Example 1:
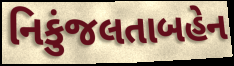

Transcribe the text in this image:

નિકુંજલતાબહેન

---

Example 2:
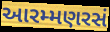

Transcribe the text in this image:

આરમ્મણરસં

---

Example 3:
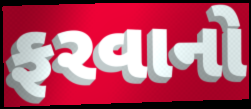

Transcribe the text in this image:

ફરવાનો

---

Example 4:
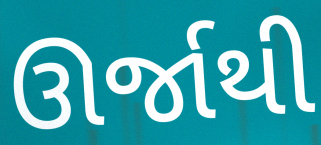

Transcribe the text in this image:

ઊર્જાથી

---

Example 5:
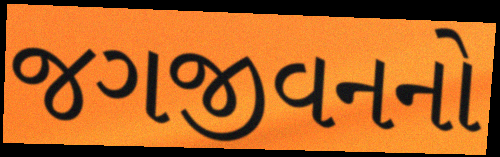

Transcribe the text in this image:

જગજીવનનો